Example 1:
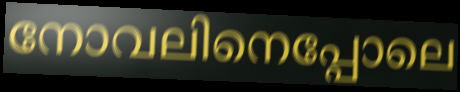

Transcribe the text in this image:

നോവലിനെപ്പോലെ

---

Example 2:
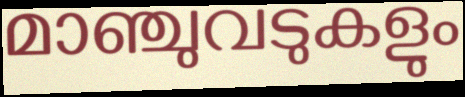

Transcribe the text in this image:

മാഞ്ചുവടുകളും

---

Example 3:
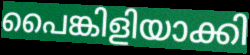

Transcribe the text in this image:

പൈങ്കിളിയാക്കി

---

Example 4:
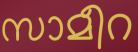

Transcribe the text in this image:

സാമീറ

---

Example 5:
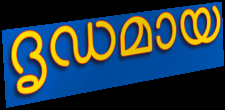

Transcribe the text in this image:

ദൃഡമായ